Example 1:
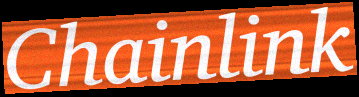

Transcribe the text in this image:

Chainlink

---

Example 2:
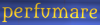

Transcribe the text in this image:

perfumare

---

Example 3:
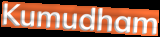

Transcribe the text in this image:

Kumudham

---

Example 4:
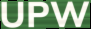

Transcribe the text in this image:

UPW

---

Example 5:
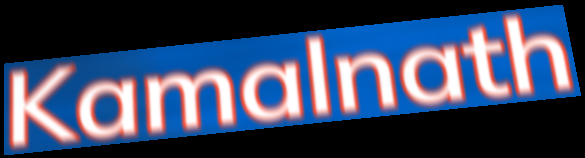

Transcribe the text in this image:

Kamalnath